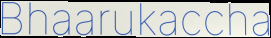
Bhaarukaccha